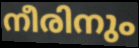
നീരിനും